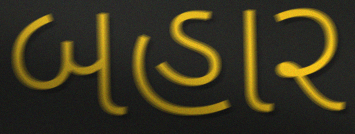
બહાર